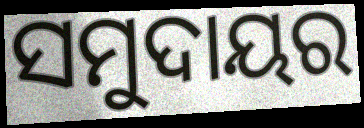
ସମୁଦାୟର